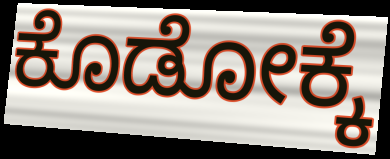
ಕೊಡೋಕ್ಕೆ